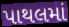
પાથલમાં